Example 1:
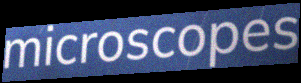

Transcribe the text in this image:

microscopes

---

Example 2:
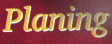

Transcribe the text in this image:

Planing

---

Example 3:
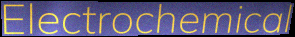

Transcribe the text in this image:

Electrochemical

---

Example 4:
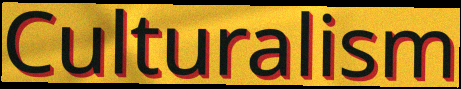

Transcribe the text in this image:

Culturalism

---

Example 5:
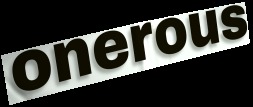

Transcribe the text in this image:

onerous